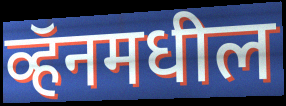
व्हॅनमधील